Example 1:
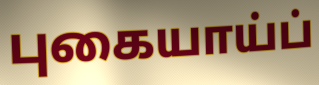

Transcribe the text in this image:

புகையாய்ப்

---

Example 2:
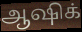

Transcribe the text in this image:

ஆஷிக்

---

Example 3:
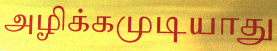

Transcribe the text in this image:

அழிக்கமுடியாது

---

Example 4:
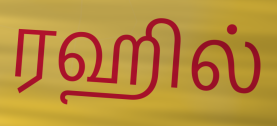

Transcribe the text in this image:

ரஹில்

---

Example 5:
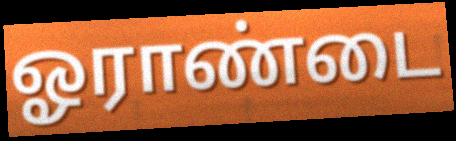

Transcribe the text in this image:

ஓராண்டை